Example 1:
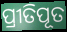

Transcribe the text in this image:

ପ୍ରୀତିପୂତ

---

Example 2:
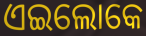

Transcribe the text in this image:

ଏଇଲୋକେ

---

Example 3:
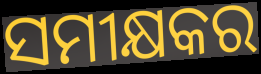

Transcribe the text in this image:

ସମୀକ୍ଷକର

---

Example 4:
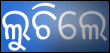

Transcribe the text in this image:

ଲୁଚିଲେ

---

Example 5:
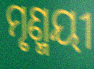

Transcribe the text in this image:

ମୃଣ୍ମୟୀ